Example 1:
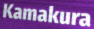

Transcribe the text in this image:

Kamakura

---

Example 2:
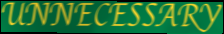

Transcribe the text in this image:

UNNECESSARY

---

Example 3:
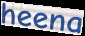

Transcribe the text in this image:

heena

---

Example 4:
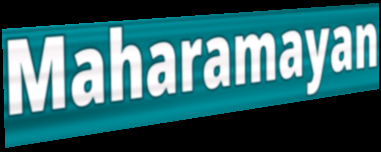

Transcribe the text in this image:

Maharamayan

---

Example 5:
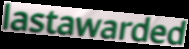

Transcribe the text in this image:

lastawarded